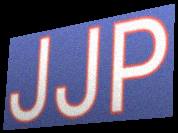
JJP